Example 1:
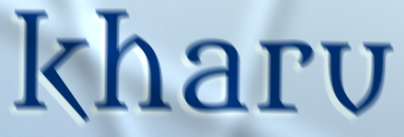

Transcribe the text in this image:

kharu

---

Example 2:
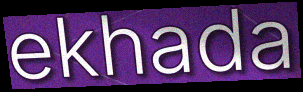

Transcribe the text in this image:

ekhada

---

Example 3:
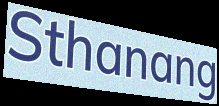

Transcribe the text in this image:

Sthanang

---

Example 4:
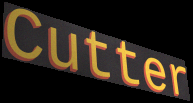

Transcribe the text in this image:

Cutter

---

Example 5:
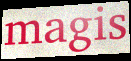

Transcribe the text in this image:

magis